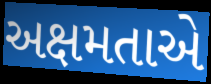
અક્ષમતાએ